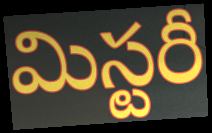
మిస్టరీ